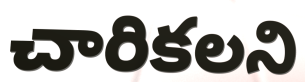
చారికలని